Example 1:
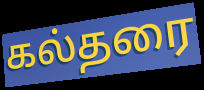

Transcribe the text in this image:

கல்தரை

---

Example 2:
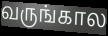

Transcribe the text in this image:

வருங்கால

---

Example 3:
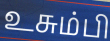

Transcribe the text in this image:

உசும்பி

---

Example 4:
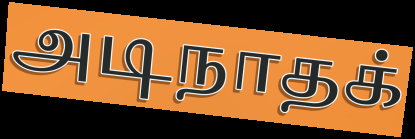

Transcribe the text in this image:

அடிநாதக்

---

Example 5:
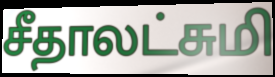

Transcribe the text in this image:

சீதாலட்சுமி